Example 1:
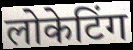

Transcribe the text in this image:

लोकेटिंग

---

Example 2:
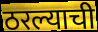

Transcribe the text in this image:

ठरल्याची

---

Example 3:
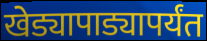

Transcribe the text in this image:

खेड्यापाड्यापर्यंत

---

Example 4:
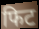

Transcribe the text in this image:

फिट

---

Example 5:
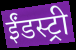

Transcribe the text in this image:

ईंडस्ट्री